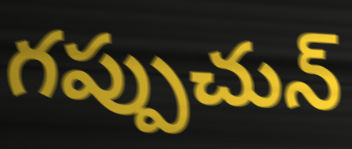
గప్పుచున్